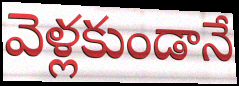
వెళ్లకుండానే